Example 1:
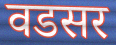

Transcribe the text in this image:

वडसर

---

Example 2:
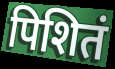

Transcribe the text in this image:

पिशितं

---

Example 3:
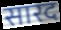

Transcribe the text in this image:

सारद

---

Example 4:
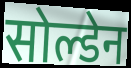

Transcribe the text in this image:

सोल्डेन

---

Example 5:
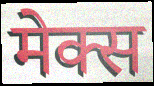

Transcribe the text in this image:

मेक्स